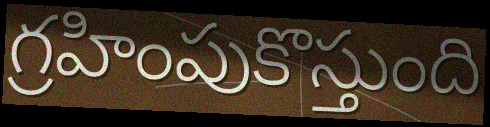
గ్రహింపుకొస్తుంది